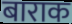
बाराक